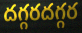
దగ్గరదగ్గర